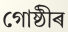
গোষ্ঠীৰ